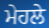
ਮੇਹਲੇ